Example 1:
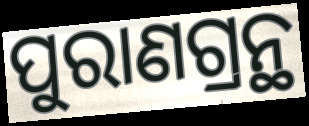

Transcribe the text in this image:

ପୁରାଣଗ୍ରନ୍ଥ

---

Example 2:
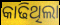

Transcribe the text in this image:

କାଢିଥିଲା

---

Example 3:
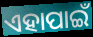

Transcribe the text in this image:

ଏହାପାଇଁ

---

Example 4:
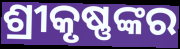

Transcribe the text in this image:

ଶ୍ରୀକୃଷ୍ଣଙ୍କର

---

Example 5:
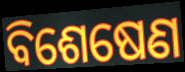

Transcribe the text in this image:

ବିଶେଷେଣ